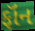
ફૉન